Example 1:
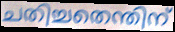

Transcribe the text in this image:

ചതിച്ചതെന്തിന്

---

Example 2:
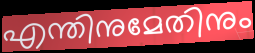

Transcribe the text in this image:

എന്തിനുമേതിനും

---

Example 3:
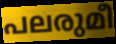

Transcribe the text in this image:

പലരുമീ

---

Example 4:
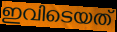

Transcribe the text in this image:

ഇവിടെയത്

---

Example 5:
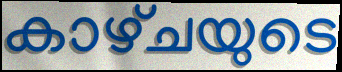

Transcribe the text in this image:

കാഴ്‌ചയുടെ